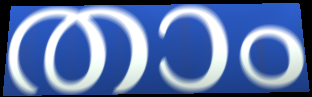
താം